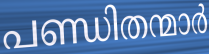
പണ്ഡിതന്മാർ